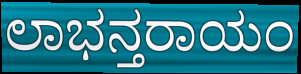
ಲಾಭನ್ತರಾಯಂ